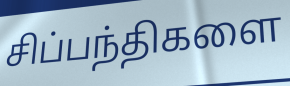
சிப்பந்திகளை